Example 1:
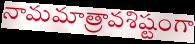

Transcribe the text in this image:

నామమాత్రావశిష్టంగా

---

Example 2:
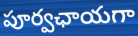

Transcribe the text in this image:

పూర్వఛాయగా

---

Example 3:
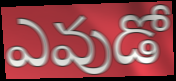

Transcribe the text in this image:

ఎవుడో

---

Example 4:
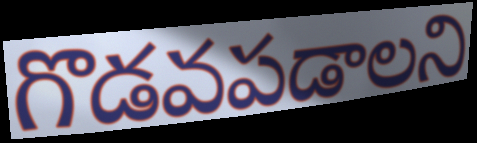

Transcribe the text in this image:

గొడవపడాలని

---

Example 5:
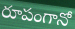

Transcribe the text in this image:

రూపంగానో